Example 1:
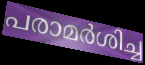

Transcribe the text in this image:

പരാമർശിച്ച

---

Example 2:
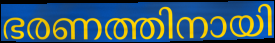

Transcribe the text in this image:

ഭരണത്തിനായി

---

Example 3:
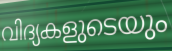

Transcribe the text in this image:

വിദ്യകളുടെയും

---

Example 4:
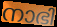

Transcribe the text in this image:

നാഭി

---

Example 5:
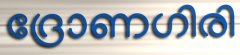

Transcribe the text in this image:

ദ്രോണഗിരി